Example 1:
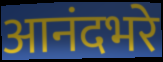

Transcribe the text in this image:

आनंदभरे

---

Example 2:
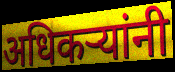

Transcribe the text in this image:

अधिकऱ्यांनी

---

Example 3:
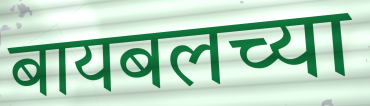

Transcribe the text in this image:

बायबलच्या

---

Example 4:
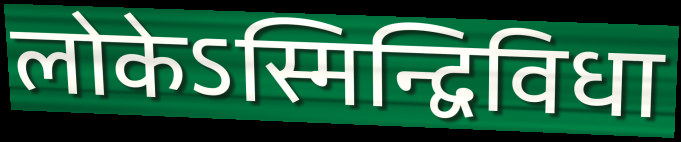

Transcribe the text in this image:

लोकेऽस्मिन्द्विविधा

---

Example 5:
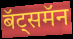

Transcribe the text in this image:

बॅट्समॅन